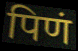
पिणं